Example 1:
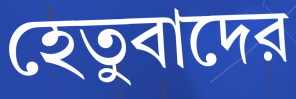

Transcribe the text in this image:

হেতুবাদের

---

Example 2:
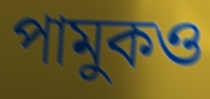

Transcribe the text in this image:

পামুকও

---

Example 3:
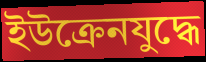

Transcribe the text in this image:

ইউক্রেনযুদ্ধে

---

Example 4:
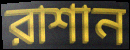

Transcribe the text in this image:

রাশান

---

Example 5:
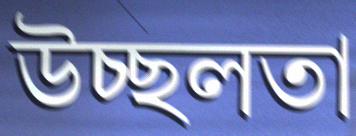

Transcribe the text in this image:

উচ্ছলতা